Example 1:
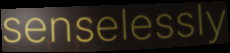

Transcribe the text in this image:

senselessly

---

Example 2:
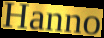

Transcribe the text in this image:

Hanno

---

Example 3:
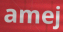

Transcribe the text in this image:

amej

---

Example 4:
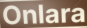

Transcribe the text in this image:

Onlara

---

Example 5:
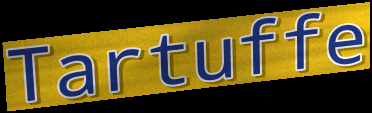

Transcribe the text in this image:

Tartuffe